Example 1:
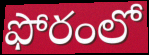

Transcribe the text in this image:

ఫోరంలో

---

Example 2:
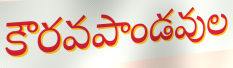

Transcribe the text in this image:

కౌరవపాండవుల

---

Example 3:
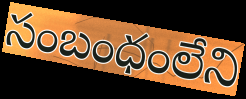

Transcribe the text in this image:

సంబంధంలేని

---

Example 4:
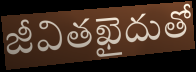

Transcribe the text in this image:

జీవితఖైదుతో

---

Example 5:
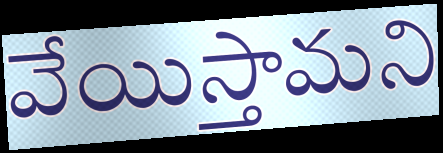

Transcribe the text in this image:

వేయిస్తామని